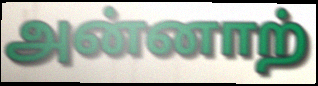
அன்னாற்